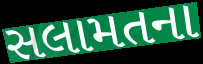
સલામતના